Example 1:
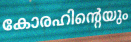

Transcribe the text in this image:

കോരഹിന്റെയും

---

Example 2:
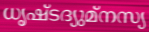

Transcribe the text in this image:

ധൃഷ്ടദ്യുമ്നസ്യ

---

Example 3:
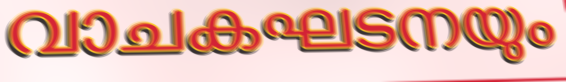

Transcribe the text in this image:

വാചകഘടനയും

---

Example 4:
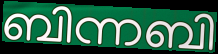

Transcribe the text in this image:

ബിന്നബി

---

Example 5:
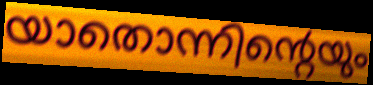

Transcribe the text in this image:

യാതൊന്നിന്റെയും